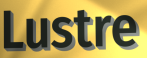
Lustre